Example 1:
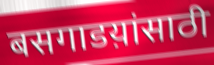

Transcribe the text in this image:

बसगाडय़ांसाठी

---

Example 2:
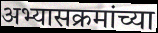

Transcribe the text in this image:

अभ्यासक्रमांच्या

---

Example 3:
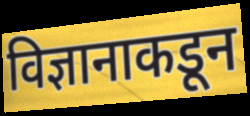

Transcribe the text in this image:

विज्ञानाकडून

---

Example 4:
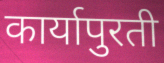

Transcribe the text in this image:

कार्यापुरती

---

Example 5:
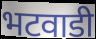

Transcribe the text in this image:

भटवाडी